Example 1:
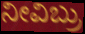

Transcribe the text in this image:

ನೀವಿಬ್ರು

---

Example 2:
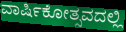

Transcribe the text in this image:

ವಾರ್ಷಿಕೋತ್ಸವದಲ್ಲಿ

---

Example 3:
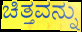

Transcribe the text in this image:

ಚಿತ್ತವನ್ನು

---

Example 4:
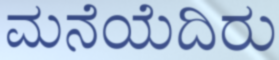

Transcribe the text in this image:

ಮನೆಯೆದಿರು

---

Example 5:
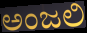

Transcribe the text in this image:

ಅಂಜಲಿ